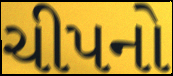
ચીપનો